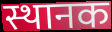
स्थानक